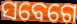
ସବେଗେ